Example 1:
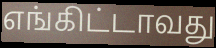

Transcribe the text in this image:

எங்கிட்டாவது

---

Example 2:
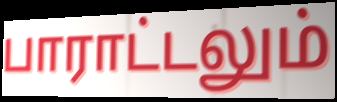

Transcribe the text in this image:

பாராட்டலும்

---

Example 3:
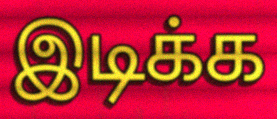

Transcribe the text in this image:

இடிக்க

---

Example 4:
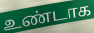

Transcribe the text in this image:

உண்டாக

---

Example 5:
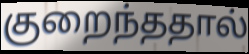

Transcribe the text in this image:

குறைந்ததால்